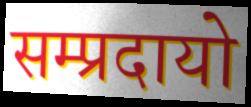
सम्प्रदायो